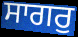
ਸਾਗਰੁ